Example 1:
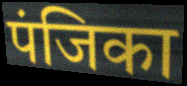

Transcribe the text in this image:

पंजिका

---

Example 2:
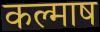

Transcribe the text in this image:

कल्माष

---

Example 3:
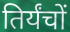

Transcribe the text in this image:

तिर्यंचों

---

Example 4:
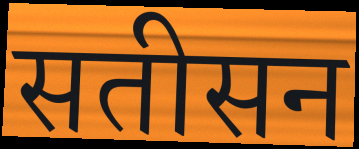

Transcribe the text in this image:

सतीसन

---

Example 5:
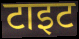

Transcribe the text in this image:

टाइट